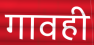
गावही